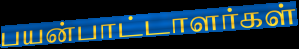
பயன்பாட்டாளர்கள்